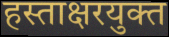
हस्ताक्षरयुक्त